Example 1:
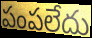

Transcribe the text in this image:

పంపలేదు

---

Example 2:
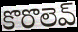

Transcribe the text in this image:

కొరొలెవ్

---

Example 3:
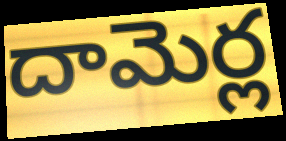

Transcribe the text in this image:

దామెర్ల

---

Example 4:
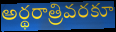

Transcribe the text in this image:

అర్థరాత్రివరకూ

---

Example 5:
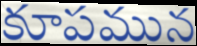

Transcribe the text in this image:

కూపమున